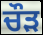
ਚੌੜ